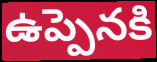
ఉప్పెనకి